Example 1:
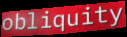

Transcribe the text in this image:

obliquity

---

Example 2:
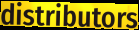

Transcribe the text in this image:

distributors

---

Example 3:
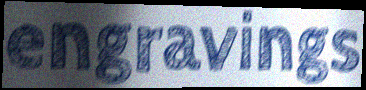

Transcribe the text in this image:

engravings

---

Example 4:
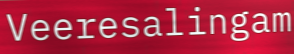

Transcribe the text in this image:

Veeresalingam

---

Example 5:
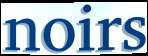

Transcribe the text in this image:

noirs